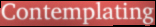
Contemplating